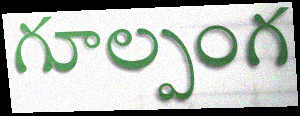
గూల్పంగ